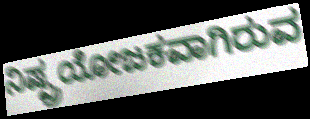
ನಿಷ್ಪ್ರಯೋಜಕವಾಗಿರುವ